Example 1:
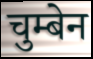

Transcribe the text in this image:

चुम्बेन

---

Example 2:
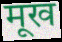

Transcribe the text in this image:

मूख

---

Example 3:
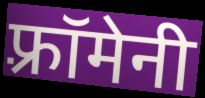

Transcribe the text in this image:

फ़्रॉमेनी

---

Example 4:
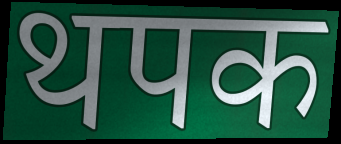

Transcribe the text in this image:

थपक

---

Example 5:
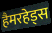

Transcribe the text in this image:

हैमरहेड्स